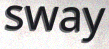
sway